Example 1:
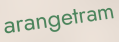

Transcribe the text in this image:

arangetram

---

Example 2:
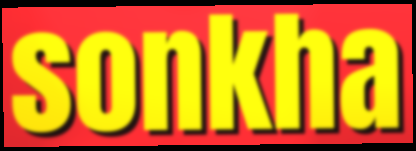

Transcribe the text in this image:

sonkha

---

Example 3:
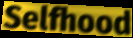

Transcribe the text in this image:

Selfhood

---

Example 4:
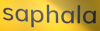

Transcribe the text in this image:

saphala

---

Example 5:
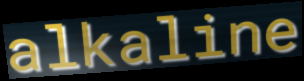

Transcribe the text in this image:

alkaline